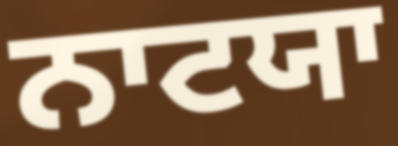
ਨਾਟਯਾ